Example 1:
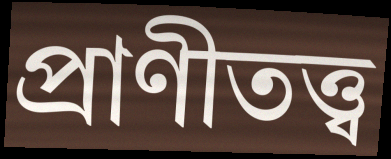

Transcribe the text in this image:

প্রাণীতত্ত্ব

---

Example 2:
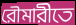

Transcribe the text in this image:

রৌমারীতে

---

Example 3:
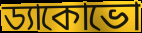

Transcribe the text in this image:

ড্যাকোভো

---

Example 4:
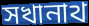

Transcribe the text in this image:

সখানাথ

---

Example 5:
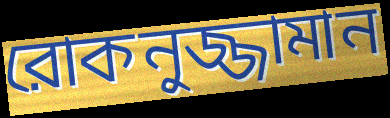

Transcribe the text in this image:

রোকনুজ্জামান